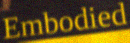
Embodied